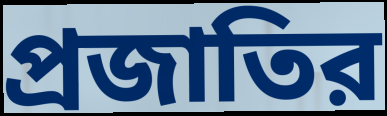
প্রজাতির